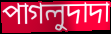
পাগলুদাদা